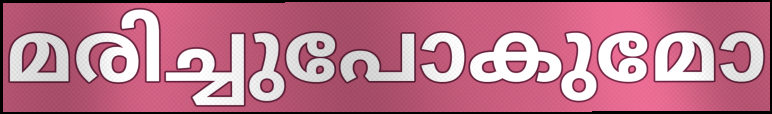
മരിച്ചുപോകുമോ